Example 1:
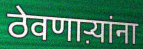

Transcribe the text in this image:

ठेवणाऱ्‍यांना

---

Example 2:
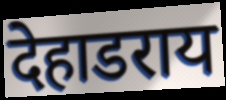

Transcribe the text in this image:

देहाडराय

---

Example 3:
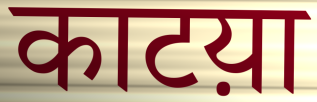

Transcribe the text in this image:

काटय़ा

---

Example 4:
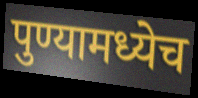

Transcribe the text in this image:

पुण्यामध्येच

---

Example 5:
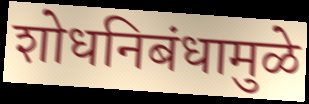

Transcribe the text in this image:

शोधनिबंधामुळे